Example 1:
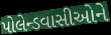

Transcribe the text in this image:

પોલેન્ડવાસીઓને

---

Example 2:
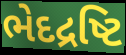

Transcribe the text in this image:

ભેદદ્રષ્ટિ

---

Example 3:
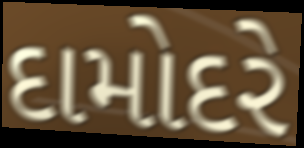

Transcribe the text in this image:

દામોદરે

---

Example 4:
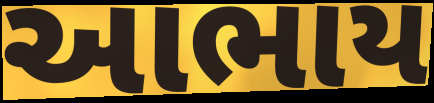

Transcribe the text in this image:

આભાય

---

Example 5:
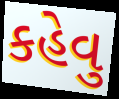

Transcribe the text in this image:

કહેવુ